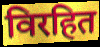
विरहित